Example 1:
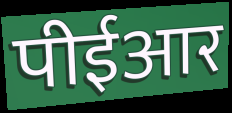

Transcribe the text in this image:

पीईआर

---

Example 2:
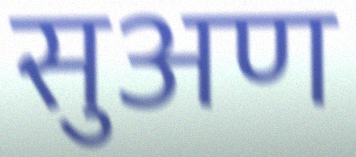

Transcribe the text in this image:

सुअण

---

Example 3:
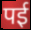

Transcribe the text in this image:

पई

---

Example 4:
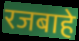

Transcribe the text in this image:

रजबाहे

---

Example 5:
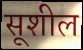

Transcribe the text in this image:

सूशील